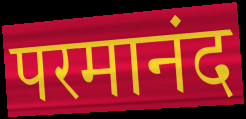
परमानंद